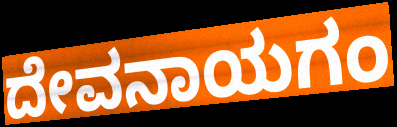
ದೇವನಾಯಗಂ